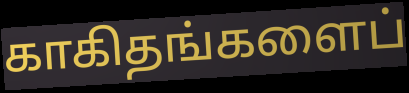
காகிதங்களைப்